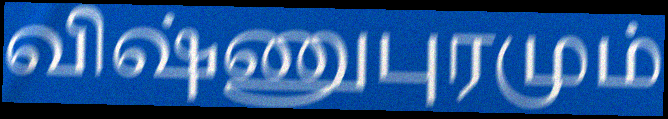
விஷ்ணுபுரமும்